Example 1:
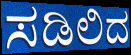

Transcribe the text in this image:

ಸಡಿಲಿದ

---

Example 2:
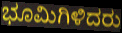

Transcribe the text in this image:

ಭೂಮಿಗಿಳಿದರು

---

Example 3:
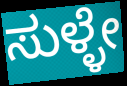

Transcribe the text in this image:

ಸುಳ್ಳೇ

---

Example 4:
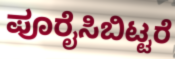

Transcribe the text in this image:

ಪೂರೈಸಿಬಿಟ್ಟರೆ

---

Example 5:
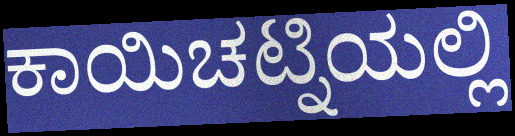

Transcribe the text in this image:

ಕಾಯಿಚಟ್ನಿಯಲ್ಲಿ